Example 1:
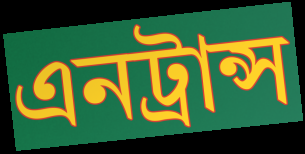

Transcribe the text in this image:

এনট্রান্স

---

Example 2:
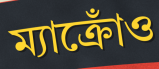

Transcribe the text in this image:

ম্যাক্রোঁও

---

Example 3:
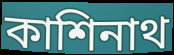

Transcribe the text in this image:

কাশিনাথ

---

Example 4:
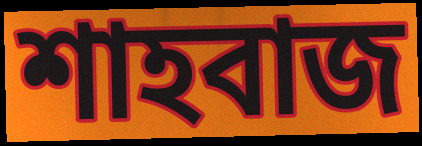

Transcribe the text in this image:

শাহবাজ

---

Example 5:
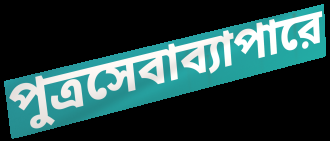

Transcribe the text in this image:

পুত্রসেবাব্যাপারে